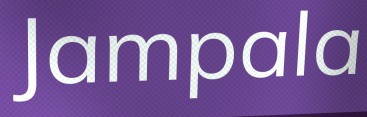
Jampala